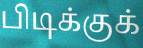
பிடிக்குக்